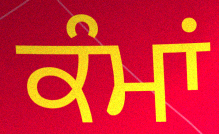
ਕੰਮਾਂ